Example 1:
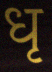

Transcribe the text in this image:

धृ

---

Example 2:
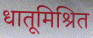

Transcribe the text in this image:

धातूमिश्रित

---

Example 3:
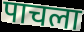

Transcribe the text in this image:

पाचला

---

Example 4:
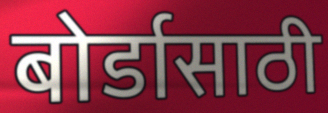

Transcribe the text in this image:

बोर्डासाठी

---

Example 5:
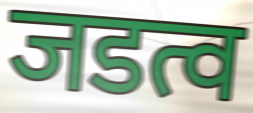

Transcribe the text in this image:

जडत्व